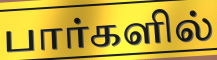
பார்களில்